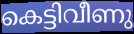
കെട്ടിവീണു